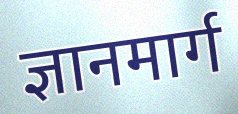
ज्ञानमार्ग